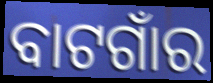
ବାଟଗାଁର